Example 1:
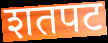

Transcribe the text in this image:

शतपट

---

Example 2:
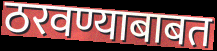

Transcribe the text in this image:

ठरवण्याबाबत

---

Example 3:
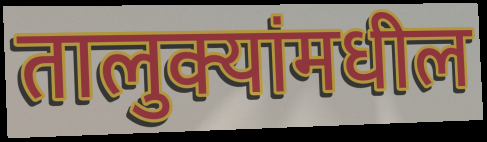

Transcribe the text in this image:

तालुक्यांमधील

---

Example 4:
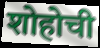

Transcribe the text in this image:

शोहोची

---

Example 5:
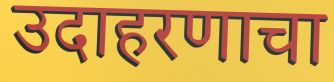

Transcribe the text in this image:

उदाहरणाचा